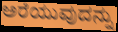
ಅರೆಯುವುದನ್ನು